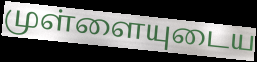
முள்ளையுடைய